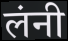
लंनी